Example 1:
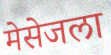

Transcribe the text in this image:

मेसेजला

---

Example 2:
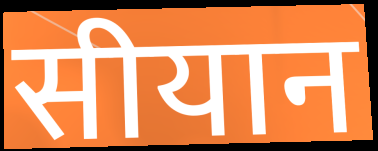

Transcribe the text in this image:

सीयान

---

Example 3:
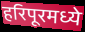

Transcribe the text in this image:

हरिपूरमध्ये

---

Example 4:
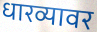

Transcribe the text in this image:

धारव्यावर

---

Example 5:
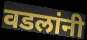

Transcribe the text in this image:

वडलांनी